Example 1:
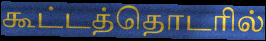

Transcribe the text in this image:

கூட்டத்தொடரில்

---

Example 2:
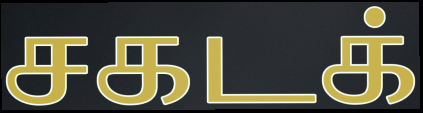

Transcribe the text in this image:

சகடக்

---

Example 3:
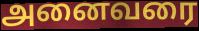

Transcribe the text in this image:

அனைவரை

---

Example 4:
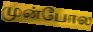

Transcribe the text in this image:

முன்போல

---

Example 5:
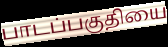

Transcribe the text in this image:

பாடப்பகுதியை